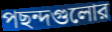
পছন্দগুলোর